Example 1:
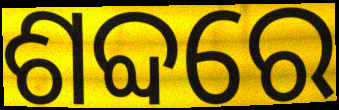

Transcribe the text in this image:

ଶବ୍ଦରେ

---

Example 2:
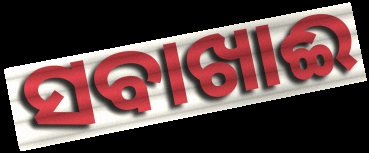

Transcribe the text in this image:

ସବାଖାଈ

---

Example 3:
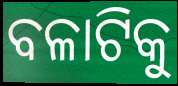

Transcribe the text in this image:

ବଳାଟିକୁ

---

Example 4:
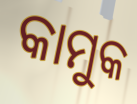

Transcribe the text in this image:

କାମୁକ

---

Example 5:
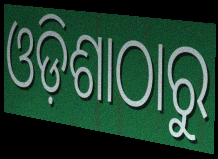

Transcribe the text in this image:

ଓଡ଼ିଶାଠାରୁ